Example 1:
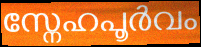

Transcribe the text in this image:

സ്നേഹപൂർവം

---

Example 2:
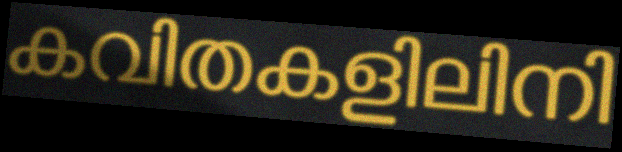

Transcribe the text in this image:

കവിതകളിലിനി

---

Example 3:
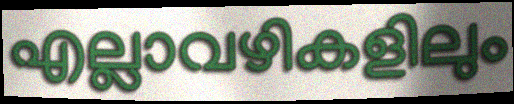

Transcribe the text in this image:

എല്ലാവഴികളിലും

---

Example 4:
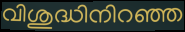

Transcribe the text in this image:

വിശുദ്ധിനിറഞ്ഞ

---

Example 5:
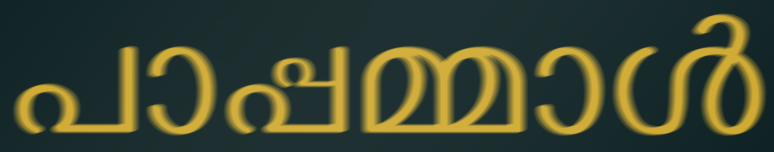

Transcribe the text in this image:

പാപ്പമ്മാൾ